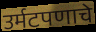
उर्मटपणाचे